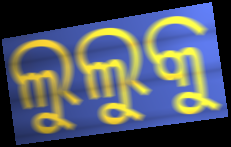
ଲୁଲୁକୁ